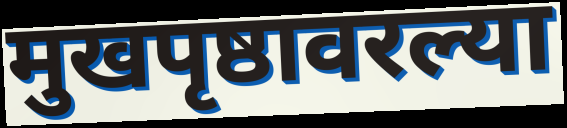
मुखपृष्ठावरल्या